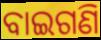
ବାଇଗଣି